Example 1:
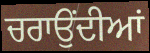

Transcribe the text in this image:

ਚਰਾਉਂਦੀਆਂ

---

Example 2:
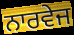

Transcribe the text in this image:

ਨਾਰਵੇਜ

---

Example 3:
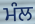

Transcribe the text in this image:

ਮੰਲ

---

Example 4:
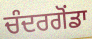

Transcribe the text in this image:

ਚੰਦਰਗੋਂਡਾ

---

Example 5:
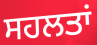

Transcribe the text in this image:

ਸਹਲਤਾਂ